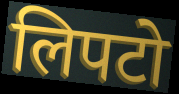
लिपटो